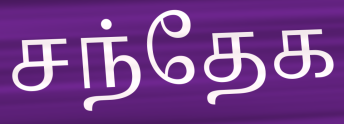
சந்தேக